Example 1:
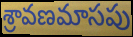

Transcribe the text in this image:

శ్రావణమాసపు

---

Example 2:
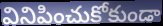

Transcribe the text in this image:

వినిపించుకోకుండా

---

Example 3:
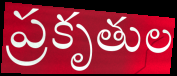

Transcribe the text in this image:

ప్రకృతుల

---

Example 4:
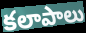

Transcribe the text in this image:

కలాపాలు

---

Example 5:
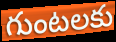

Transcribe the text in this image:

గుంటలకు